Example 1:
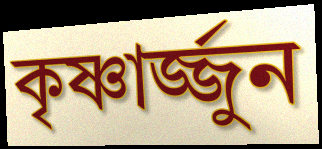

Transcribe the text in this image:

কৃষ্ণার্জ্জুন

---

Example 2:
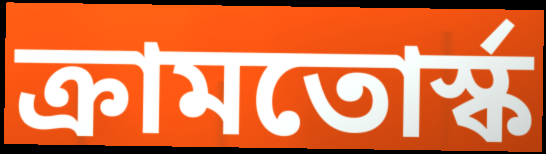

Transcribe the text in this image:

ক্রামতোর্স্ক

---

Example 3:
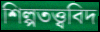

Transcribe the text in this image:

শিল্পতত্ত্ববিদ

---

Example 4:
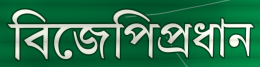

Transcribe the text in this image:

বিজেপিপ্রধান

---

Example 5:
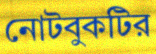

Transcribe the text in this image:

নোটবুকটির